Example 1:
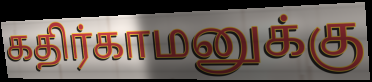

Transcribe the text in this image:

கதிர்காமனுக்கு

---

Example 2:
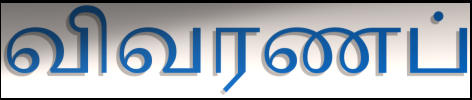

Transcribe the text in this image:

விவரணப்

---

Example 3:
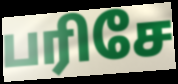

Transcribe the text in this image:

பரிசே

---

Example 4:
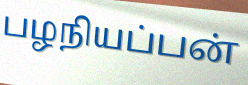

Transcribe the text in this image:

பழநியப்பன்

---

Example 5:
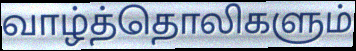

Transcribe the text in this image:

வாழ்த்தொலிகளும்